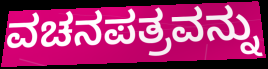
ವಚನಪತ್ರವನ್ನು